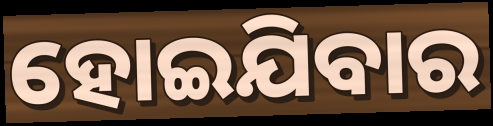
ହୋଇଯିବାର